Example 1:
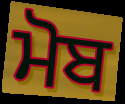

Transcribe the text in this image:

ਮੋਬ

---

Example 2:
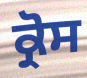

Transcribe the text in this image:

ਕ੍ਰੋਸ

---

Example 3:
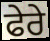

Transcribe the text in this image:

ਫੇਰੇ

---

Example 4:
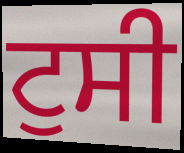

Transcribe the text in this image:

ਟੁਸੀ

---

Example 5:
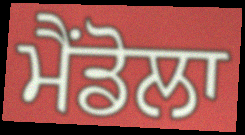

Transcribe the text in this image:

ਮੈਂਡੋਲਾ